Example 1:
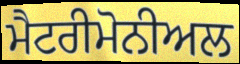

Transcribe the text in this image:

ਮੈਟਰੀਮੋਨੀਅਲ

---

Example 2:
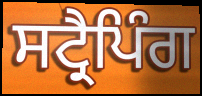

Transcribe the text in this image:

ਸਟ੍ਰੈਪਿੰਗ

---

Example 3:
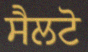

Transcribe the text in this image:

ਸੈਲਟੋ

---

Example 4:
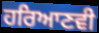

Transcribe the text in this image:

ਹਰਿਆਣਵੀ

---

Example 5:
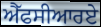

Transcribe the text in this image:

ਐੱਫਸੀਆਰਏ